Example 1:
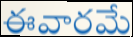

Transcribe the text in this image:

ఈవారమే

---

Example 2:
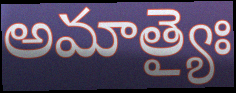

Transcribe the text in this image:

అమాత్యైః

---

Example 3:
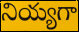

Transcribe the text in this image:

నియ్యగా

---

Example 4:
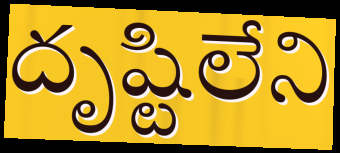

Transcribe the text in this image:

దృష్టిలేని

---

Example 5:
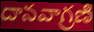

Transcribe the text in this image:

దానవాగ్రణి